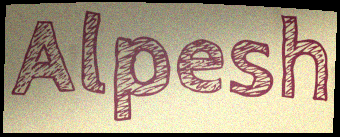
Alpesh